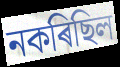
নকৰিছিল